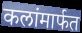
कलांमार्फत